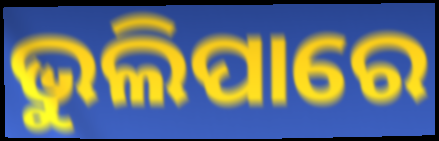
ଭୁଲିପାରେ